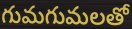
గుమగుమలతో